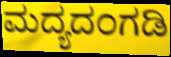
ಮದ್ಯದಂಗಡಿ